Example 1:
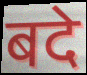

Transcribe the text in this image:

बदे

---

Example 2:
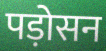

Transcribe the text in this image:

पड़ोसन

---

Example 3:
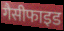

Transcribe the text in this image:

गैसीफाइड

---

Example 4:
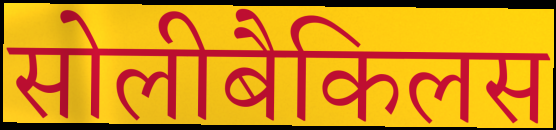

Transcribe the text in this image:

सोलीबैकिलस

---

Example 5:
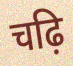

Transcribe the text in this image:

चढ़ि